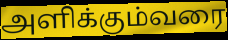
அளிக்கும்வரை